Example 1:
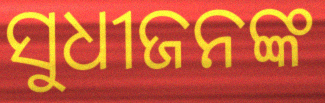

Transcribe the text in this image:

ସୁଧୀଜନଙ୍କ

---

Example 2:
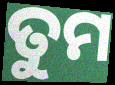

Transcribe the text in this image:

ତୁମ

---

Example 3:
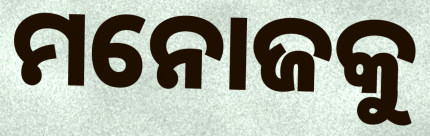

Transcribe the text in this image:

ମନୋଜକୁ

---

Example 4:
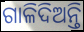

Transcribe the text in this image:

ଗାଳିଦିଅନ୍ତି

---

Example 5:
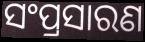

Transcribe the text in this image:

ସଂପ୍ରସାରଣ